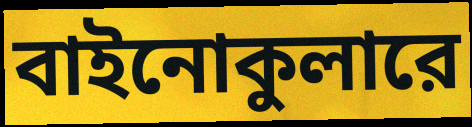
বাইনোকুলারে